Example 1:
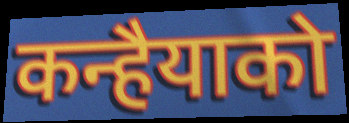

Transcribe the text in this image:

कन्हैयाको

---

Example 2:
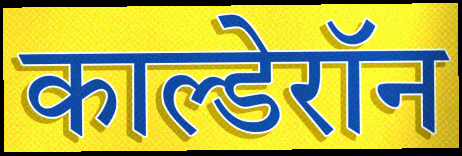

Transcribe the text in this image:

काल्डेरॉन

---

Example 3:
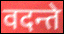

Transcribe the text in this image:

वदन्ते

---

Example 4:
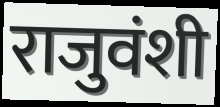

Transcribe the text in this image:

राजुवंशी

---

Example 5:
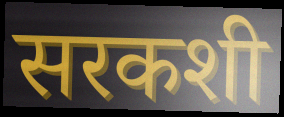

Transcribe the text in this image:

सरकशी